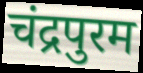
चंद्रपुरम